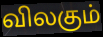
விலகும்